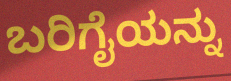
ಬರಿಗೈಯನ್ನು